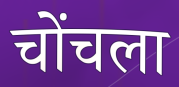
चोंचला